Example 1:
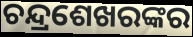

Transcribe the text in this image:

ଚନ୍ଦ୍ରଶେଖରଙ୍କର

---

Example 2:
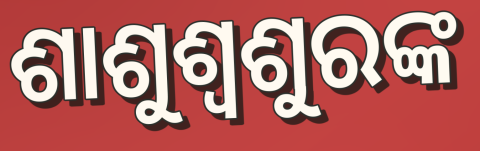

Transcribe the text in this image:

ଶାଶୁଶ୍ୱଶୁରଙ୍କ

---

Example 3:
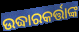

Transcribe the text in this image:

ଉଦ୍ଧାରକର୍ତ୍ତାଙ୍କ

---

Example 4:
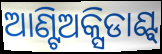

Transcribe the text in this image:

ଆଣ୍ଟିଅକ୍ସିଡାଣ୍ଟ୍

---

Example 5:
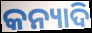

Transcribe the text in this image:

କନ୍ୟାଦି